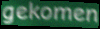
gekomen